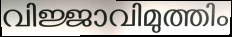
വിജ്ജാവിമുത്തിം